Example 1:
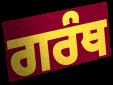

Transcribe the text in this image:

ਗਰੰਥ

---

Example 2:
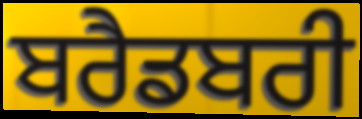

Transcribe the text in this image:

ਬਰੈਡਬਰੀ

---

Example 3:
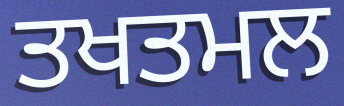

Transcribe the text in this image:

ਤਖਤਮਲ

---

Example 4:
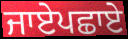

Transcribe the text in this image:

ਜਾਏਪਛਾਏ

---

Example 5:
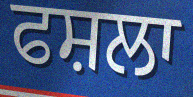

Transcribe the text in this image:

ਫਸ਼ਲਾ